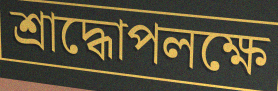
শ্রাদ্ধোপলক্ষে